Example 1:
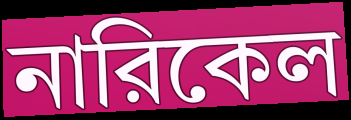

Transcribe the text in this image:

নারিকেল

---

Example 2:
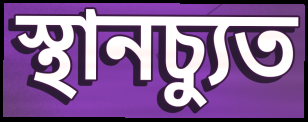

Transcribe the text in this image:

স্থানচ্যুত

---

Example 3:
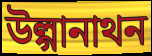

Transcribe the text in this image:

উল্গানাথন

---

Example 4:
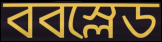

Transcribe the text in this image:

ববস্লেড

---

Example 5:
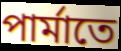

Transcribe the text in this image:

পার্মাতে